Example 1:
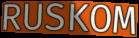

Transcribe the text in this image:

RUSKOM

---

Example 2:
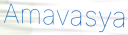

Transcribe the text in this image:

Amavasya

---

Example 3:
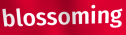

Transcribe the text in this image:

blossoming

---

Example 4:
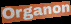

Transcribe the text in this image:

Organon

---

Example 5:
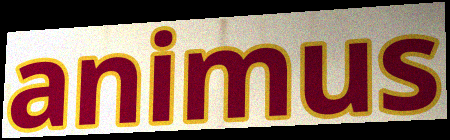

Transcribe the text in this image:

animus